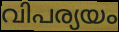
വിപര്യയം